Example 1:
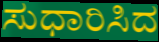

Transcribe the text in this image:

ಸುಧಾರಿಸಿದ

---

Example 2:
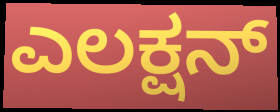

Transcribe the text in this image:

ಎಲಕ್ಷನ್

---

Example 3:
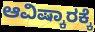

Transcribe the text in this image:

ಆವಿಷ್ಕಾರಕ್ಕೆ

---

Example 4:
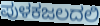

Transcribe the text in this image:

ಪುಳಕಜಲದಲಿ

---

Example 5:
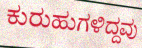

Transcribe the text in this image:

ಕುರುಹುಗಳಿದ್ದವು